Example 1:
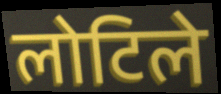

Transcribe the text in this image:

लोटिले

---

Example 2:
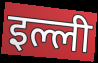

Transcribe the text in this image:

इल्ली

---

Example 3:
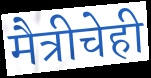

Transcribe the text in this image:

मैत्रीचेही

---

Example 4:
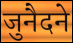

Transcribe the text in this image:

जुनैदने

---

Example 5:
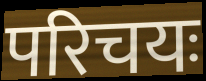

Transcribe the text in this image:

परिचयः